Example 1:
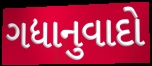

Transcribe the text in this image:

ગદ્યાનુવાદો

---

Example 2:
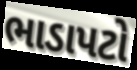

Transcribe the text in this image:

ભાડાપટો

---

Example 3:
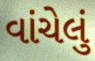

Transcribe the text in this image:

વાંચેલું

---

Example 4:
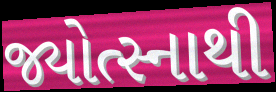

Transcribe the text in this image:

જ્યોત્સ્નાથી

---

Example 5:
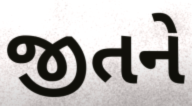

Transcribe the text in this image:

જીતને